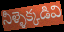
నీళ్ళెక్కడివి